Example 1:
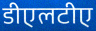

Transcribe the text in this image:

डीएलटीए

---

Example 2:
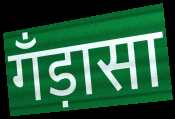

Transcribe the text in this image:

गँड़ासा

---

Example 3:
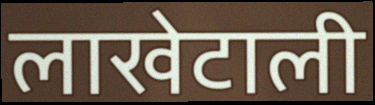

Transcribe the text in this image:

लाखेटाली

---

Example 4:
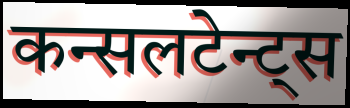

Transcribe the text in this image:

कन्सलटेन्ट्स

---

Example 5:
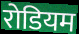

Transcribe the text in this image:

रोडियम